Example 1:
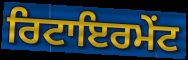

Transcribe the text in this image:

ਰਿਟਾਇਰਮੇਂਟ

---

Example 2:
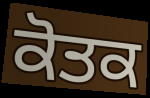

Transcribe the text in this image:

ਕੋਤਕ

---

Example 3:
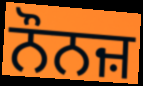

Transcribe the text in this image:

ਨੌਨਜ਼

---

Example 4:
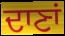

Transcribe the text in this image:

ਦਾਣਾਂ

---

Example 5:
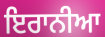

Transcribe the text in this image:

ਇਰਾਨੀਆ